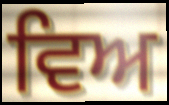
ਵਿਅ